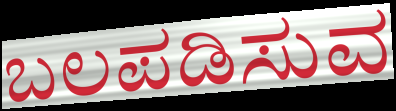
ಬಲಪಡಿಸುವ